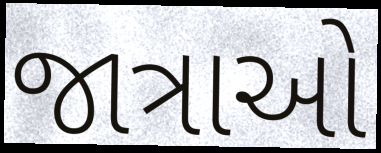
જાત્રાઓ